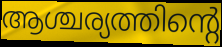
ആശ്ചര്യത്തിന്റെ